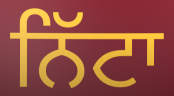
ਨਿੱਟਾ